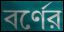
বর্ণের